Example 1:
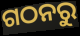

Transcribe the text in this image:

ଗଠନରୁ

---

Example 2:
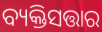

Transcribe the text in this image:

ବ୍ୟକ୍ତିସତ୍ତାର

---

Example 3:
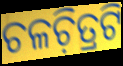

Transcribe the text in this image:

ଚଳଚ଼ିତ୍ରଟି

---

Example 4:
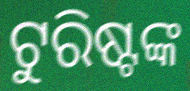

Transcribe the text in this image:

ଟୁରିଷ୍ଟଙ୍କ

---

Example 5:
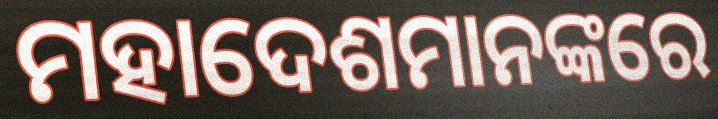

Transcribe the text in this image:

ମହାଦେଶମାନଙ୍କରେ